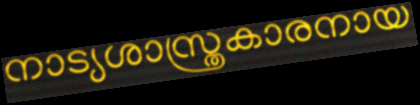
നാട്യശാസ്ത്രകാരനായ